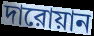
দারোয়ান